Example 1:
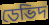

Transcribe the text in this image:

ডেভিদ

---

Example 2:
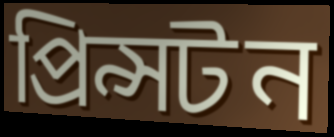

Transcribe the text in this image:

প্ৰিন্সটন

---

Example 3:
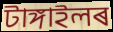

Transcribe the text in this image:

টাঙ্গাইলৰ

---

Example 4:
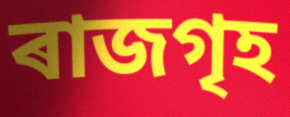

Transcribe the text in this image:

ৰাজগৃহ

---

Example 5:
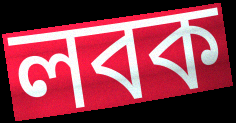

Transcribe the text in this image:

লবক